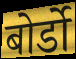
बोर्डो